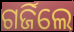
ଗର୍ଜିଲେ